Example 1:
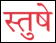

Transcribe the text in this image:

स्तुषे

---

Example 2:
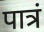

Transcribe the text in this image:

पात्रं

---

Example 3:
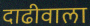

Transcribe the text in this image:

दाढीवाला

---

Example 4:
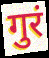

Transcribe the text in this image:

गुरं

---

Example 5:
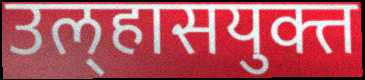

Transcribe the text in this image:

उल्हासयुक्त